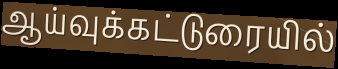
ஆய்வுக்கட்டுரையில்